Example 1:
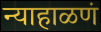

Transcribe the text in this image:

न्याहाळणं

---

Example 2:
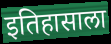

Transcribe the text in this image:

इतिहासाला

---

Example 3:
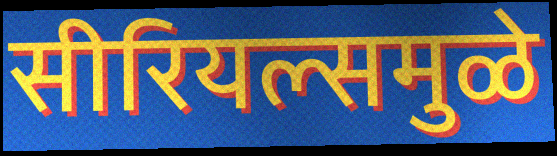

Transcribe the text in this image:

सीरियल्समुळे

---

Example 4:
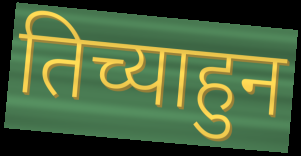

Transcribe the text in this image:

तिच्याहुन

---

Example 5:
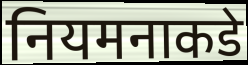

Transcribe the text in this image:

नियमनाकडे